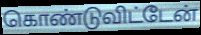
கொண்டுவிட்டேன்